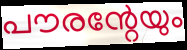
പൗരന്റേയും